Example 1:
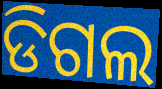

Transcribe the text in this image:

ଡିଗଲ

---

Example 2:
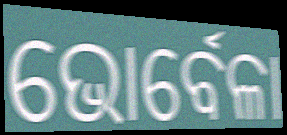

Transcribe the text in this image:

ଭୋର୍ବେଳା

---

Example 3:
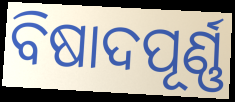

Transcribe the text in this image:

ବିଷାଦପୂର୍ଣ୍ଣ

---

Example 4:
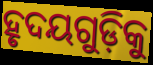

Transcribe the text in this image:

ହୃଦୟଗୁଡ଼ିକୁ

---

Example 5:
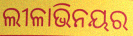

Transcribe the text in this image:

ଲୀଳାଭିନୟର